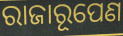
ରାଜାରୂପେଣ